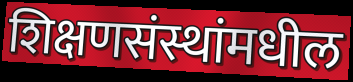
शिक्षणसंस्थांमधील